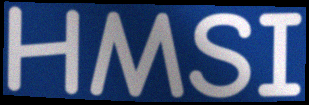
HMSI